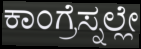
ಕಾಂಗ್ರೆಸ್ನಲ್ಲೇ